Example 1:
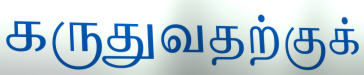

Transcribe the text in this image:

கருதுவதற்குக்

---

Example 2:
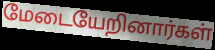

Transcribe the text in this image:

மேடையேறினார்கள்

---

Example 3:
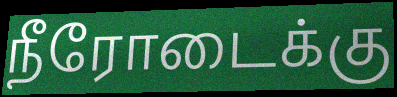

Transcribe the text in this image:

நீரோடைக்கு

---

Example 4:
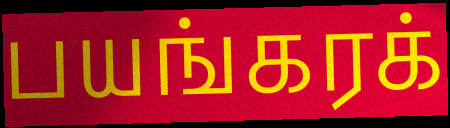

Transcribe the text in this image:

பயங்கரக்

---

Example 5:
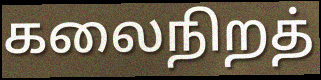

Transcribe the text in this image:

கலைநிறத்